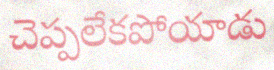
చెప్పలేకపోయాడు